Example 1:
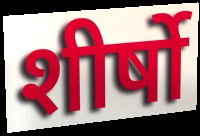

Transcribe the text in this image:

शीर्षो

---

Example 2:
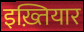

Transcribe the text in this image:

इख़्तियार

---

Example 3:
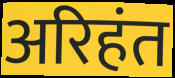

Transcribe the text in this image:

अरिहंत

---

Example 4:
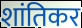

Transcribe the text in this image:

शांतिकर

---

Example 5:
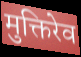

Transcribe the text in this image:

मुक्तिरेव